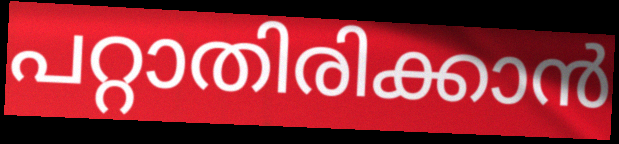
പറ്റാതിരിക്കാൻ